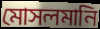
মোসলমানি